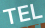
TEL